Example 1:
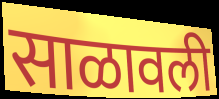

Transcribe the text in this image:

साळावली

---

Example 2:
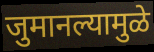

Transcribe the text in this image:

जुमानल्यामुळे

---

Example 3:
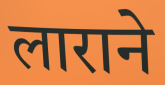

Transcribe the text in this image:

लाराने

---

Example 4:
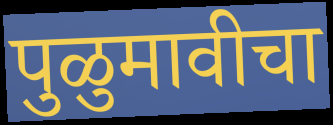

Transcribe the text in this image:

पुळुमावीचा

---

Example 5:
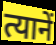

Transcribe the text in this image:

त्यानें